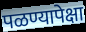
पळण्यापेक्षा